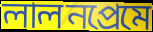
লালনপ্রেমে